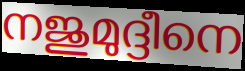
നജുമുദ്ദീനെ